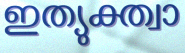
ഇത്യുക്ത്വാ